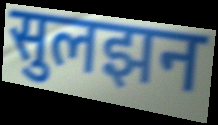
सुलझन